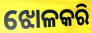
ଝୋଳକରି